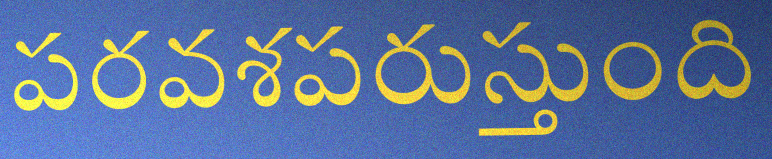
పరవశపరుస్తుంది